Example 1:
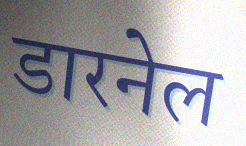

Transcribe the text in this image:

डारनेल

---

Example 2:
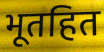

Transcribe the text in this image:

भूतहित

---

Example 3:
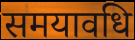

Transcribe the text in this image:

समयावधि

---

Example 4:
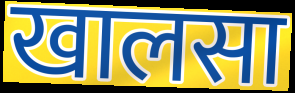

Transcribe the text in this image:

खालसा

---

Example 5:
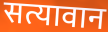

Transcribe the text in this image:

सत्यावान